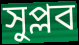
সুপ্লব